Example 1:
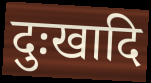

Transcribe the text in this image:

दुःखादि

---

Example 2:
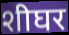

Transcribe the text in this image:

शीघर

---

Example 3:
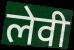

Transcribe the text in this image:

लेवी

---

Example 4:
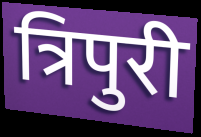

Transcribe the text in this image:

त्रिपुरी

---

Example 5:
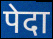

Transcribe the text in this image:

पेदा